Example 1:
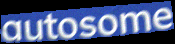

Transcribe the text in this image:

autosome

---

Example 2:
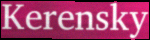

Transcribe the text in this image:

Kerensky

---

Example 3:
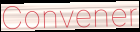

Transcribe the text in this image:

Convener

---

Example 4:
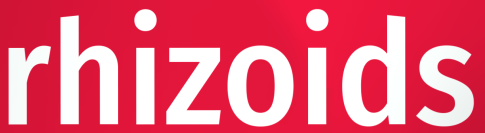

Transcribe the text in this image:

rhizoids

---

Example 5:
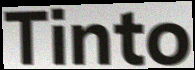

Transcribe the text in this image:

Tinto